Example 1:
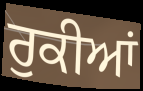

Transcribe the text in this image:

ਰੁਕੀਆਂ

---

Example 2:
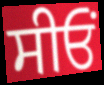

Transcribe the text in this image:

ਸੀਓਂ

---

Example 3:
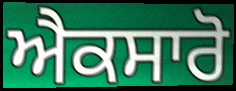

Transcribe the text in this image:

ਐਕਸਾਰੋ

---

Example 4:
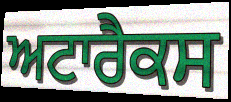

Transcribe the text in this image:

ਅਟਾਰੈਕਸ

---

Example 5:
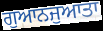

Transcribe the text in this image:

ਗੁਆਨਜੁਆਤਾ